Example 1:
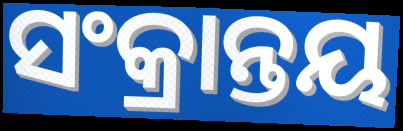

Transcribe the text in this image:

ସଂକ୍ରାନ୍ତୟ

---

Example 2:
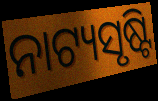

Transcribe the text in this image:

ନାଟ୍ୟସୃଷ୍ଟି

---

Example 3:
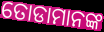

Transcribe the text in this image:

ତୋଡାମାନଙ୍କ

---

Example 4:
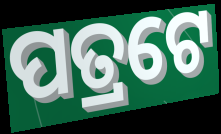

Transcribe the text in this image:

ପତ୍ରଟେ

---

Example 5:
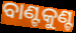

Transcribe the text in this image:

ବାଣ୍ଟକୁଣ୍ଟ